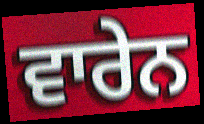
ਵਾਰੇਨ